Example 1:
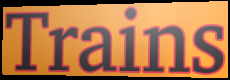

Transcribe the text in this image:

Trains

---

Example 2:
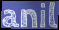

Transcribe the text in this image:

anil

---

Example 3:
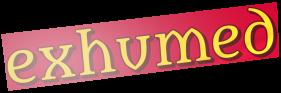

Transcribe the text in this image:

exhumed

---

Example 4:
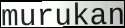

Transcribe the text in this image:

murukan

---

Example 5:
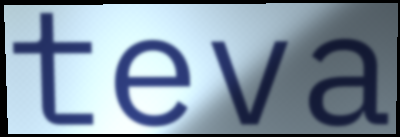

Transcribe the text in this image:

teva